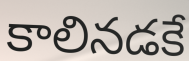
కాలినడకే